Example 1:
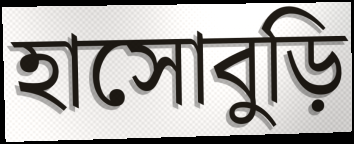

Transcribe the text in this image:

হাসোবুড়ি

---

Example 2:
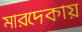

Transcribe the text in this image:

মারদেকায়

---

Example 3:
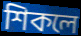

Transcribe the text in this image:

শিকলে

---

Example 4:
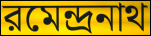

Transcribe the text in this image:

রমেন্দ্রনাথ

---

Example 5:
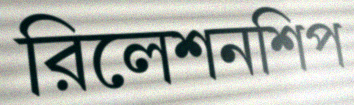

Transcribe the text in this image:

রিলেশনশিপ